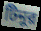
টিনুর